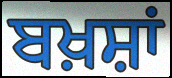
ਬਖ਼ਸ਼ਾਂ